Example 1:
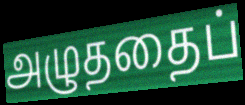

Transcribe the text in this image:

அழுததைப்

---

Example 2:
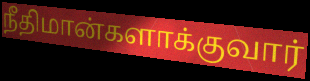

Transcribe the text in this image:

நீதிமான்களாக்குவார்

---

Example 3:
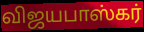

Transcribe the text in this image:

விஜயபாஸ்கர்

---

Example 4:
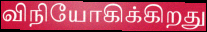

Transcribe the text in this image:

விநியோகிக்கிறது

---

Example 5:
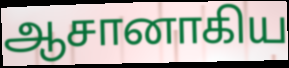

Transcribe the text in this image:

ஆசானாகிய